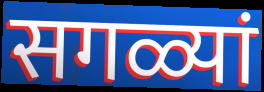
सगळ्यां